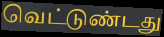
வெட்டுண்டது